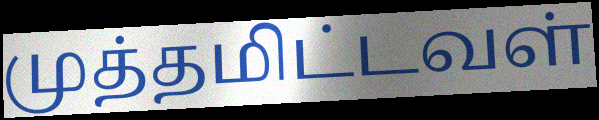
முத்தமிட்டவள்